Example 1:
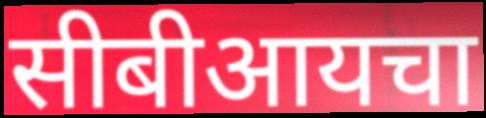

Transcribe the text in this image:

सीबीआयचा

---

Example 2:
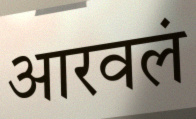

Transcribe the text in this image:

आरवलं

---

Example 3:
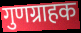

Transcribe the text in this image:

गुणग्राहक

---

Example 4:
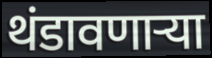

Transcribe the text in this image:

थंडावणाऱ्या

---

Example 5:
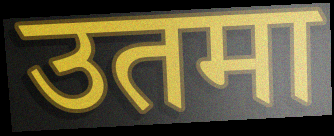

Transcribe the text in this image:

उतमा